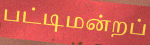
பட்டிமன்றப்